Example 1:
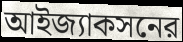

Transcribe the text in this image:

আইজ্যাকসনের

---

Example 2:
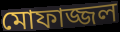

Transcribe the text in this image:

মোফাজ্জল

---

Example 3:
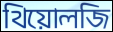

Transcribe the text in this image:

থিয়োলজি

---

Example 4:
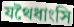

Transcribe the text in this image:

যথৈধাংসি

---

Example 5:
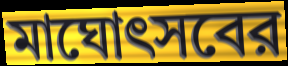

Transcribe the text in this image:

মাঘোৎসবের